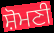
ਸ਼ੋਮਣੀ